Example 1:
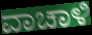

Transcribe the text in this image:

ವಾಚಾಳಿ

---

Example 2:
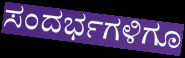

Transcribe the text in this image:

ಸಂದರ್ಭಗಳಿಗೂ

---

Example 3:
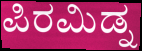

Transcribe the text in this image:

ಪಿರಮಿಡ್ನ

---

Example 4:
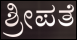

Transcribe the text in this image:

ಶ್ರೀಪತೆ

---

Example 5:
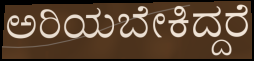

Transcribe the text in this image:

ಅರಿಯಬೇಕಿದ್ದರೆ